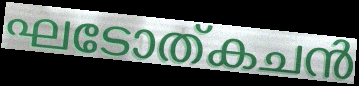
ഘടോത്കചൻ